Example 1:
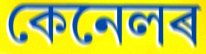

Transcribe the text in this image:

কেনেলৰ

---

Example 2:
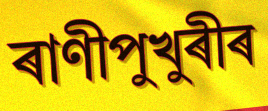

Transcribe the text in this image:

ৰাণীপুখুৰীৰ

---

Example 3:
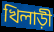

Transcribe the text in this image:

খিলাড়ী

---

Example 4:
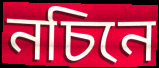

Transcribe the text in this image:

নচিনে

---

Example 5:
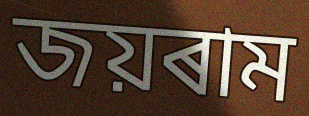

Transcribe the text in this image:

জয়ৰাম